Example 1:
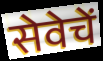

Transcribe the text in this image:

सेवेचें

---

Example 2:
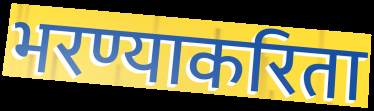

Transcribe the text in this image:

भरण्याकरिता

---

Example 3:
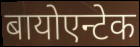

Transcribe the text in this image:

बायोएन्टेक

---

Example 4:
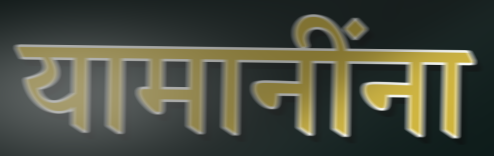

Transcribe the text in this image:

यामानींना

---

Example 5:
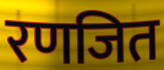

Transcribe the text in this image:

रणजित